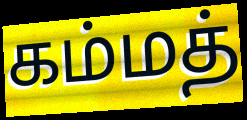
கம்மத்